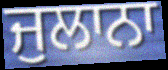
ਜੁਲਾਨਾ